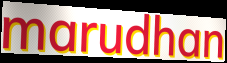
marudhan